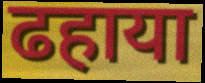
ढहाया